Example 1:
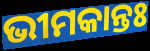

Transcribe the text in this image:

ଭୀମକାନ୍ତଃ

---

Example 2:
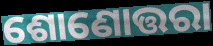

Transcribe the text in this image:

ଶୋଣୋତ୍ତରା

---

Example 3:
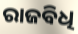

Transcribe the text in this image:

ରାଜବିଧି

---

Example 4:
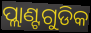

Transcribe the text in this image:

ପ୍ଲାଣ୍ଟଗୁଡିକ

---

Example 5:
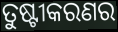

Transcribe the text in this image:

ତୁଷ୍ଟୀକରଣର